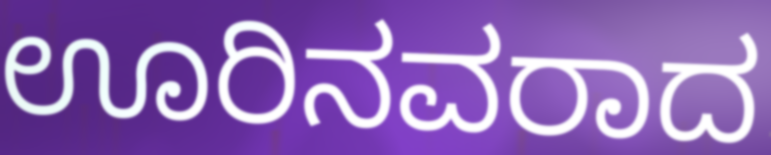
ಊರಿನವರಾದ